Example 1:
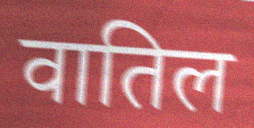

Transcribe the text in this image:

वातिल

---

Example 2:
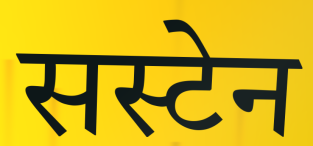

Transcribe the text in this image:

सस्टेन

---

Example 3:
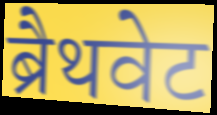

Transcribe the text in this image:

ब्रैथवेट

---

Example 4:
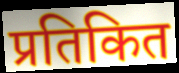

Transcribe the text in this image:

प्रतिकित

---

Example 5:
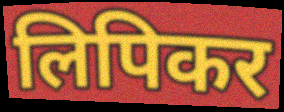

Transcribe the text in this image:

लिपिकर